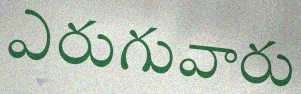
ఎరుగువారు